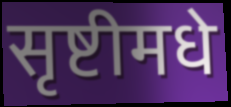
सृष्टीमधे